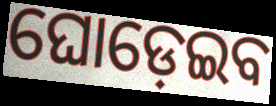
ଘୋଡ଼େଇବ